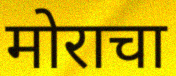
मोराचा